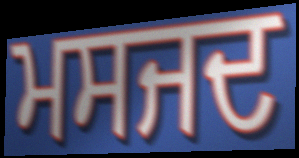
ਮਸਜਦ